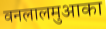
वनलालमुआका